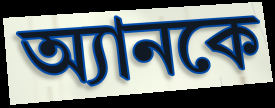
অ্যানকে